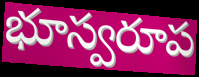
భూస్వరూప